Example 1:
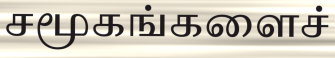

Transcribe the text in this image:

சமூகங்களைச்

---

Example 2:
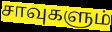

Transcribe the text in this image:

சாவுகளும்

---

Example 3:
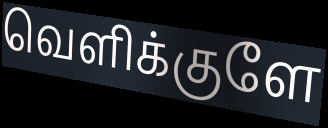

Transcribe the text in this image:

வெளிக்குளே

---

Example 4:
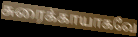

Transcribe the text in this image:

சுரைக்காயாகவே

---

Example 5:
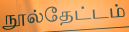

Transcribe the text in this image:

நூல்தேட்டம்